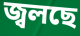
জ্বলছে